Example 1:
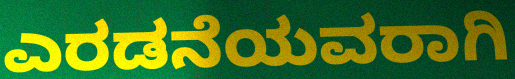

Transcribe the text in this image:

ಎರಡನೆಯವರಾಗಿ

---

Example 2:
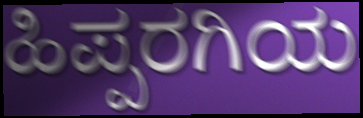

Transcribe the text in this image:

ಹಿಪ್ಪರಗಿಯ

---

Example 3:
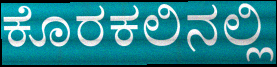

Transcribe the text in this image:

ಕೊರಕಲಿನಲ್ಲಿ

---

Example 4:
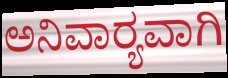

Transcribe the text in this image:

ಅನಿವಾರ‍್ಯವಾಗಿ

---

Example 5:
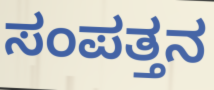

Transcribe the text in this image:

ಸಂಪತ್ತನ